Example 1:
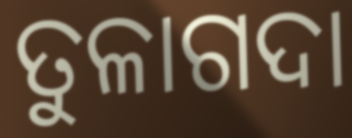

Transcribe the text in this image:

ତୁଳାଗଦା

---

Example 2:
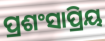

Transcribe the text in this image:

ପ୍ରଶଂସାପ୍ରିୟ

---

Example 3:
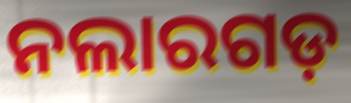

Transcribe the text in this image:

ନଲାରଗଡ଼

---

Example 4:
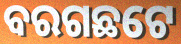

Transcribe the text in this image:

ବରଗଛଟେ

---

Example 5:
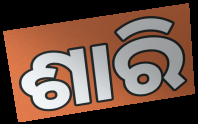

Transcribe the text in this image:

ଶାରି